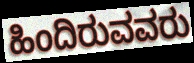
ಹಿಂದಿರುವವರು